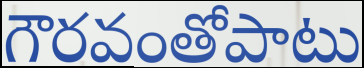
గౌరవంతోపాటు